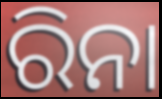
ରିନା